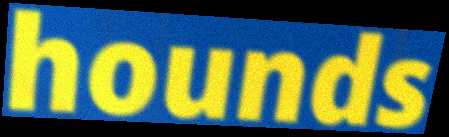
hounds